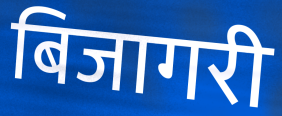
बिजागरी